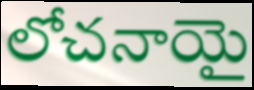
లోచనాయై